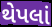
થેપલાં